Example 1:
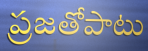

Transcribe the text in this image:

ప్రజతోపాటు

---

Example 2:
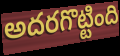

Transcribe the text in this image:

అదరగొట్టింది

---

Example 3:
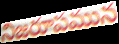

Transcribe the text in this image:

నిజరూపమున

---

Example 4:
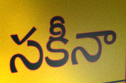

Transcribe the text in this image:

సకీనా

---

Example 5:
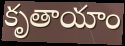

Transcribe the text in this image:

కృతాయాం